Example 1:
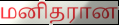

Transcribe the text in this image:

மனிதரான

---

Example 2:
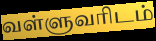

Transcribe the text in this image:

வள்ளுவரிடம்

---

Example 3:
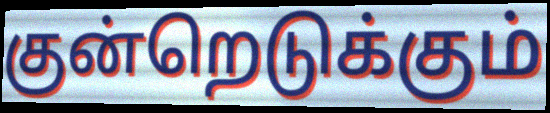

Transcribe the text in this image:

குன்றெடுக்கும்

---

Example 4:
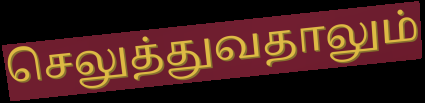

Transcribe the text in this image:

செலுத்துவதாலும்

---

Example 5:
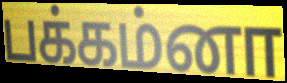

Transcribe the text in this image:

பக்கம்னா